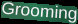
Grooming